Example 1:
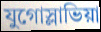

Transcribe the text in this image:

যুগোস্লাভিয়া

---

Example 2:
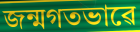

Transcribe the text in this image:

জন্মগতভাৱে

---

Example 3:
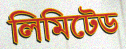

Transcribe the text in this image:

লিমিটেড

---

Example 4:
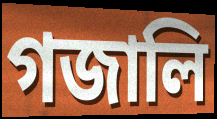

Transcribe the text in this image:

গজালি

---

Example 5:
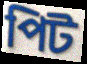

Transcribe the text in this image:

পিট